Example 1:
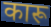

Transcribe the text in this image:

कारू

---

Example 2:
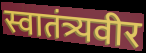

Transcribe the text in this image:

स्वातंत्र्यवीर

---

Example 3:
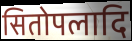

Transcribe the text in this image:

सितोपलादि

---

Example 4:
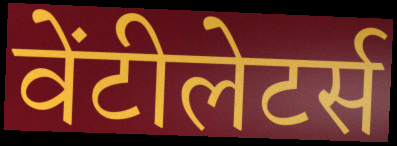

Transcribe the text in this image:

वेंटीलेटर्स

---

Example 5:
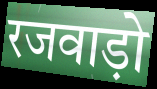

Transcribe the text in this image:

रजवाड़ो